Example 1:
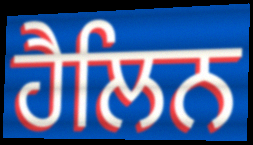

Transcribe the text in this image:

ਹੈਲਿਨ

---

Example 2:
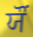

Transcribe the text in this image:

ਯੌਂ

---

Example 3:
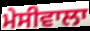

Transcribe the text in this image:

ਮੇਸੀਵਾਲਾ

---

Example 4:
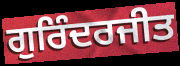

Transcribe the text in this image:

ਗੁਰਿੰਦਰਜੀਤ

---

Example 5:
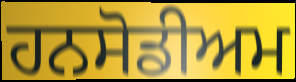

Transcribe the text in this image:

ਹਨਸੋਡੀਅਮ